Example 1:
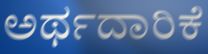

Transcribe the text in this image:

ಅರ್ಥದಾರಿಕೆ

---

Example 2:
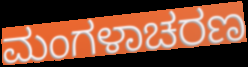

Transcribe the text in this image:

ಮಂಗಳಾಚರಣ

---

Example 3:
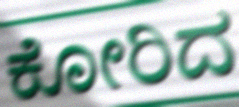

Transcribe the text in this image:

ಕೋರಿದ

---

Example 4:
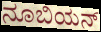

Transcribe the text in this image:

ನೂಬಿಯನ್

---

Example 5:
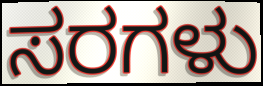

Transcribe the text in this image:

ಸರಗಳು